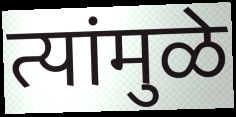
त्यांमुळे